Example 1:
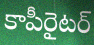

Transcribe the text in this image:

కాపీరైటర్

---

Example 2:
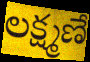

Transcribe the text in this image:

లక్ష్మణే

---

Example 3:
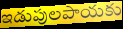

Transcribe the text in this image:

ఇడుపులపాయకు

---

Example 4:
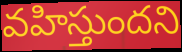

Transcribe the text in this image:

వహిస్తుందని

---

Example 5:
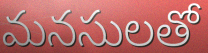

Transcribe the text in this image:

మనసులతో